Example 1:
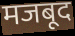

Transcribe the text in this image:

मजबूद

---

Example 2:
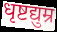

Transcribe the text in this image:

धृष्टद्युम्र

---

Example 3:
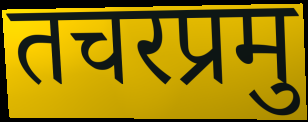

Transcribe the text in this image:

तचरप्रमु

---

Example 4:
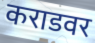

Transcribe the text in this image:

कराडवर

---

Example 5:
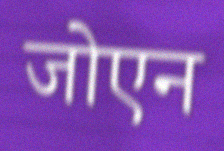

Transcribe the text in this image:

जोएन